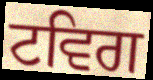
ਟਵਿਗ